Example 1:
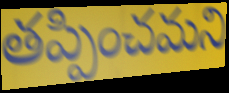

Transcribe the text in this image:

తప్పించమని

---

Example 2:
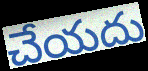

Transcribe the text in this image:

చేయదు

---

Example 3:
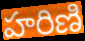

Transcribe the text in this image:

హరిణి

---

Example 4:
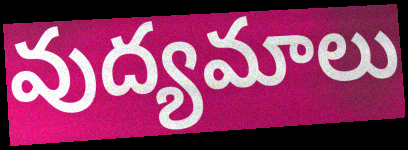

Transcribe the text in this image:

వుద్యమాలు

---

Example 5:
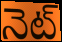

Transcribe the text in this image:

నెట్